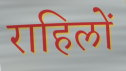
राहिलों